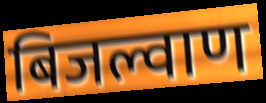
बिजल्वाण